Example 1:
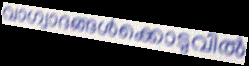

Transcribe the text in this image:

വാഗ്വാദങ്ങൾക്കൊടുവിൽ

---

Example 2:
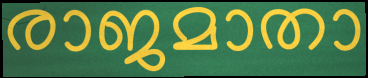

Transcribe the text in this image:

രാജമാതാ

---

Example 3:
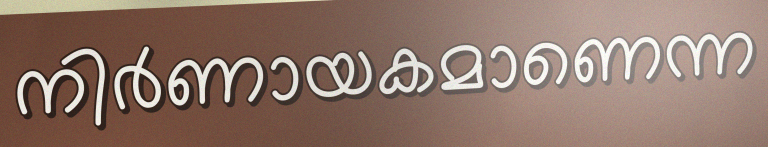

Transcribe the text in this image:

നിർണായകമാണെന്ന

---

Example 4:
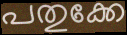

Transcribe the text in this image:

പതുക്കേ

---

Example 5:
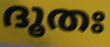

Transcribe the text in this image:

ദൂതഃ